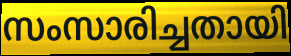
സംസാരിച്ചതായി